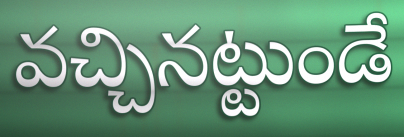
వచ్చినట్టుండే